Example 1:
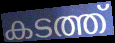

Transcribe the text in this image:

കടത്ത്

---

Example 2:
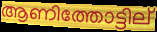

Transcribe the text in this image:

ആണിത്തോട്ടില്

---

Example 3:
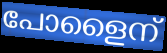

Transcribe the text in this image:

പോളൈന്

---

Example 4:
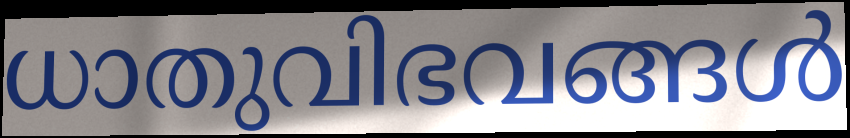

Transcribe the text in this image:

ധാതുവിഭവങ്ങൾ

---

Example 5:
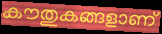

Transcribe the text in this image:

കൗതുകങ്ങളാണ്